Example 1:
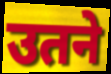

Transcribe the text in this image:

उतने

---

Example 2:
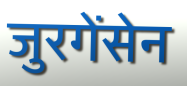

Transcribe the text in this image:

जुरगेंसेन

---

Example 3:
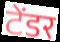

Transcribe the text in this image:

टेंडर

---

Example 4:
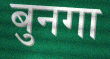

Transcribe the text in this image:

बुनगा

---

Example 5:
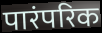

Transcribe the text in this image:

पारंपरिक